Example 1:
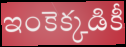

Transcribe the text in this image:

ఇంకెక్కడికీ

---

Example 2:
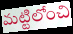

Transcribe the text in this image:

మట్టిలోంచి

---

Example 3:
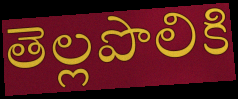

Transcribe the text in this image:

తెల్లపొలికి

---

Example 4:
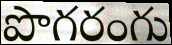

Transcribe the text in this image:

పొగరంగు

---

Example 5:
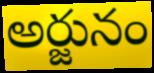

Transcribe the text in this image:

అర్జునం